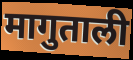
मागुताली